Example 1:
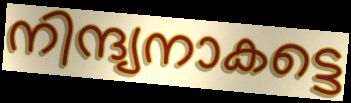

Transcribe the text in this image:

നിന്ദ്യനാകട്ടെ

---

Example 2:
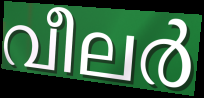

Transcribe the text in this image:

വീലർ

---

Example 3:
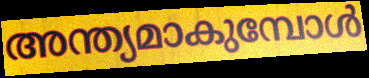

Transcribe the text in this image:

അന്ത്യമാകുമ്പോൾ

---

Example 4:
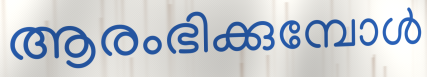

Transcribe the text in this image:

ആരംഭിക്കുമ്പോൾ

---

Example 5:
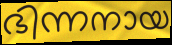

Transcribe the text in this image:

ഭിന്നനായ